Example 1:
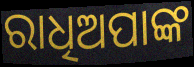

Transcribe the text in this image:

ରାଧିଅପାଙ୍କ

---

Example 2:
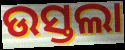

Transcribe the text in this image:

ଉସ୍ତଲା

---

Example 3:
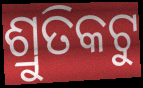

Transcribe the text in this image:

ଶ୍ରୁତିକଟୁ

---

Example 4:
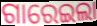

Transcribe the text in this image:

ଗାରେଇଲା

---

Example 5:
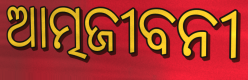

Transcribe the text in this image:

ଆତ୍ମଜୀବନୀ